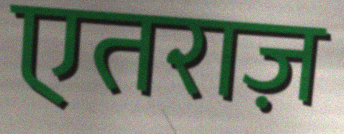
एतराज़